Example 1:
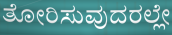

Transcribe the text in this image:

ತೋರಿಸುವುದರಲ್ಲೇ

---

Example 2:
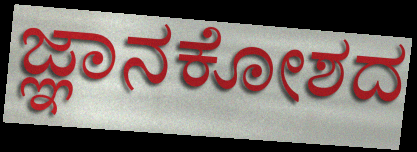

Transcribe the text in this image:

ಜ್ಞಾನಕೋಶದ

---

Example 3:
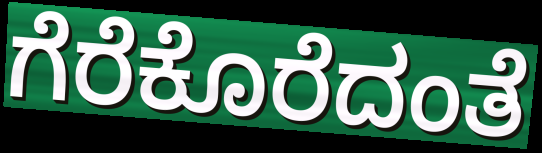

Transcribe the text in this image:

ಗೆರೆಕೊರೆದಂತೆ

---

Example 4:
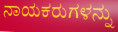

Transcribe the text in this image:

ನಾಯಕರುಗಳನ್ನು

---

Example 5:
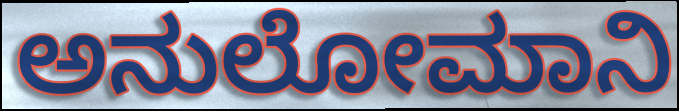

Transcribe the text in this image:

ಅನುಲೋಮಾನಿ